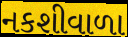
નકશીવાળા